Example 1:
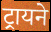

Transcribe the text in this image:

ट्रायने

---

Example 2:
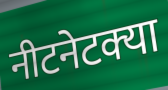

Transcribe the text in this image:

नीटनेटक्‍या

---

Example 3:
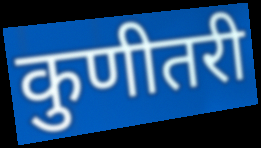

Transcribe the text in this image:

कुणीतरी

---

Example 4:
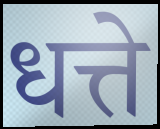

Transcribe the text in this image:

धत्ते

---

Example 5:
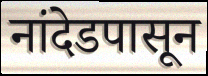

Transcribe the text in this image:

नांदेडपासून